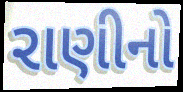
રાણીનો